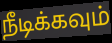
நீடிக்கவும்